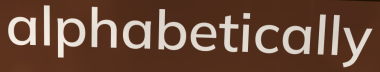
alphabetically